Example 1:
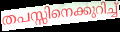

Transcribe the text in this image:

തപസ്സിനെക്കുറിച്ച്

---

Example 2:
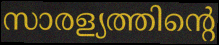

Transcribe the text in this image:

സാരള്യത്തിന്റെ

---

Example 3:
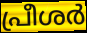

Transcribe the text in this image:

പ്രീശർ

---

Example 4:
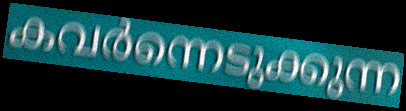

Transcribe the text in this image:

കവർന്നെടുക്കുന്ന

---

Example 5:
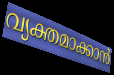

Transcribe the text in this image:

വ്യക്തമാക്കാൻ